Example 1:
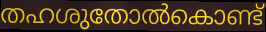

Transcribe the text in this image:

തഹശുതോൽകൊണ്ട്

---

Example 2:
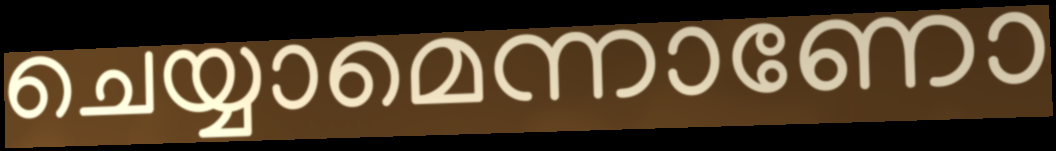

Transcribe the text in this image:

ചെയ്യാമെന്നാണോ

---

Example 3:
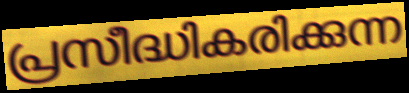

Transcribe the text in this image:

പ്രസീദ്ധികരിക്കുന്ന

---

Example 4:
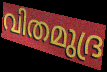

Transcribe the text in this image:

വിതമുദ്ര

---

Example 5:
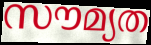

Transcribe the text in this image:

സൗമ്യത